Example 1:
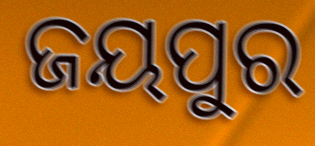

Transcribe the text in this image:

ଜୟପୁର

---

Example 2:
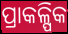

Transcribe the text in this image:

ପ୍ରାକଳ୍ପିକ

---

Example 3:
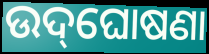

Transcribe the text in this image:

ଉଦ୍‌ଘୋଷଣା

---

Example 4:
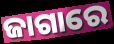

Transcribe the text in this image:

ଜାଗାରେ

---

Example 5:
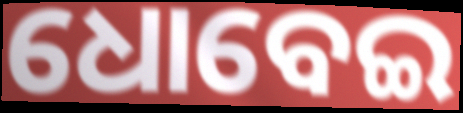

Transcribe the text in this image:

ଧୋବେଇ